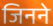
जिनने